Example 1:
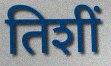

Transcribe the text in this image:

तिशीं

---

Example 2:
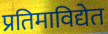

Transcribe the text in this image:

प्रतिमाविद्येत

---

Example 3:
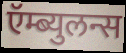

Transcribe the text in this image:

ऍम्ब्युलन्स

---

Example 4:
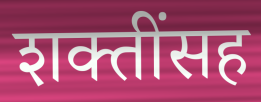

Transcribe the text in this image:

शक्तींसह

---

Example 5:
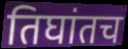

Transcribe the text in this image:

तिघांतच